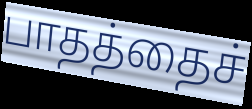
பாதத்தைச்